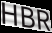
HBR